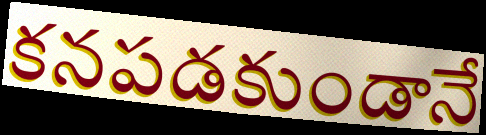
కనపడకుండానే